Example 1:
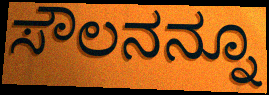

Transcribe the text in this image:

ಸೌಲನನ್ನೂ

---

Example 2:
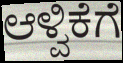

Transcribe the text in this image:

ಆಳ್ವಿಕೆಗೆ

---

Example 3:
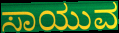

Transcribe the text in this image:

ಸಾಯುವ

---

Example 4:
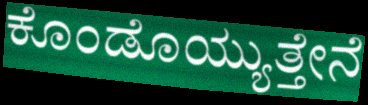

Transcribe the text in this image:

ಕೊಂಡೊಯ್ಯುತ್ತೇನೆ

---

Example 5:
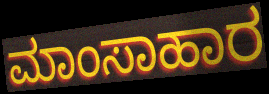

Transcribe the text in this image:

ಮಾಂಸಾಹಾರ